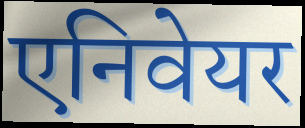
एनिवेयर